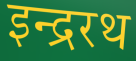
इन्द्ररथ